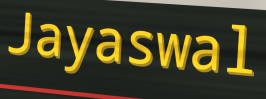
Jayaswal